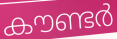
കൗണ്ടർ